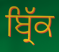
ਬ੍ਰਿੱਕ